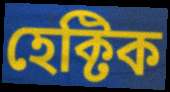
হেক্টিক